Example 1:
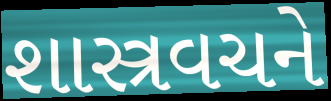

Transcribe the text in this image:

શાસ્ત્રવચને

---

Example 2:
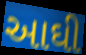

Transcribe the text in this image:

આઘી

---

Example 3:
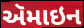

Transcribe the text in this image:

ઍમાઇન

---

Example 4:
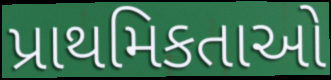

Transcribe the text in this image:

પ્રાથમિકતાઓ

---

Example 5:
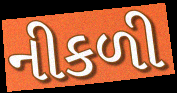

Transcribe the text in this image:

નીકળી